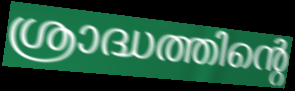
ശ്രാദ്ധത്തിന്റെ